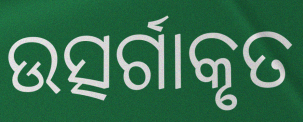
ଉତ୍ସର୍ଗାକୃତ